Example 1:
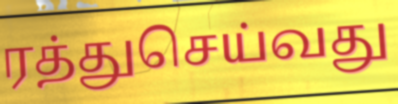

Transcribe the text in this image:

ரத்துசெய்வது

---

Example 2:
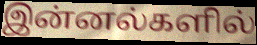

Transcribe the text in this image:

இன்னல்களில்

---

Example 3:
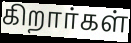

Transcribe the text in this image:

கிறார்கள்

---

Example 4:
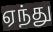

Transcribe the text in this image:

ஏந்து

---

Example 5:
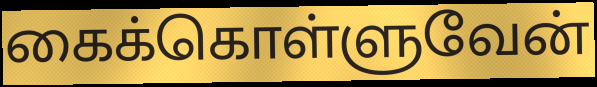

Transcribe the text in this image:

கைக்கொள்ளுவேன்